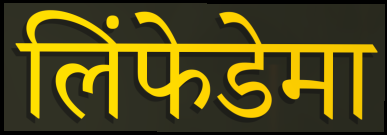
लिंफेडेमा